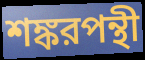
শঙ্করপন্থী